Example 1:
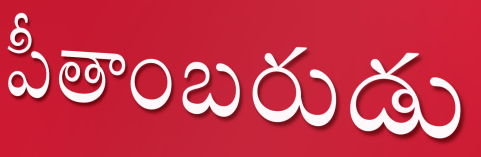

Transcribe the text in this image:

పీతాంబరుడు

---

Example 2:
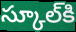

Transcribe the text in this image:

స్కూల్‌కి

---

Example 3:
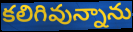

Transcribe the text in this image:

కలిగివున్నాను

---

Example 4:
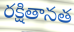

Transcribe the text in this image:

రక్షితానత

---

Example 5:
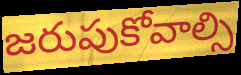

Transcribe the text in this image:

జరుపుకోవాల్సి